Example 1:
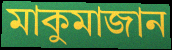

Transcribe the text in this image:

মাকুমাজান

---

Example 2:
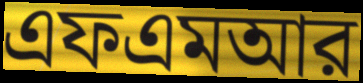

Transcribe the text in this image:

এফএমআর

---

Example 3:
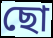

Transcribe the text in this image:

ছো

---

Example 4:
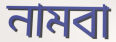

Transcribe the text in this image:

নামবা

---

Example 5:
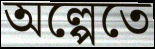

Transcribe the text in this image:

অল্পেতে